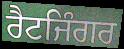
ਰੈਟਜਿੰਗਰ